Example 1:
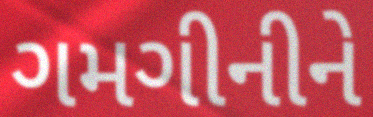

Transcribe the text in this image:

ગમગીનીને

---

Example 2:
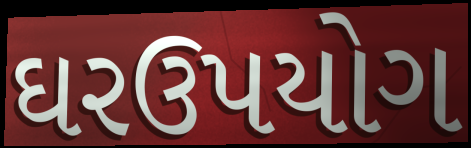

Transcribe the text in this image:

ઘરઉપયોગ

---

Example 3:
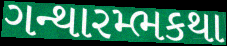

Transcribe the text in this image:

ગન્થારમ્ભકથા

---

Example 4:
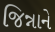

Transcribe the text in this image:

જિન્નાને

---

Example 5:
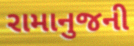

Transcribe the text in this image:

રામાનુજની